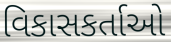
વિકાસકર્તાઓ